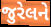
જુરેલને